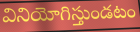
వినియోగిస్తుండటం